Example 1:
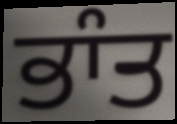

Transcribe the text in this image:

ਭਾੰਤ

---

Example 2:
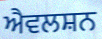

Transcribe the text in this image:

ਐਵਲਸ਼ਨ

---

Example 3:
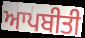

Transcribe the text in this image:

ਆਪਬੀਤੀ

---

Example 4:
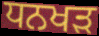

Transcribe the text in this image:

ਧਨਖੜ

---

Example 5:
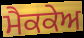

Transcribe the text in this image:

ਮੈਕਕੇਅ